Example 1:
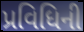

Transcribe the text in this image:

પ્રવિધિની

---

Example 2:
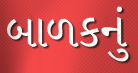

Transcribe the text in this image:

બાળકનું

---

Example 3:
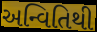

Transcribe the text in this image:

અન્વિતિથી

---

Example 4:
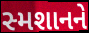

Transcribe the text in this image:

સ્મશાનને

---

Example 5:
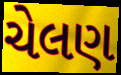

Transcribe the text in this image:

ચેલણ